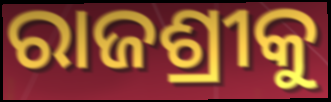
ରାଜଶ୍ରୀକୁ